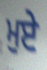
ਮੁਏ